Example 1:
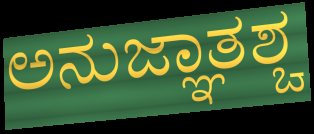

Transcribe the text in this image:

ಅನುಜ್ಞಾತಶ್ಚ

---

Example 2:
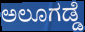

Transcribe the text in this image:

ಅಲೂಗಡ್ಡೆ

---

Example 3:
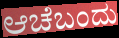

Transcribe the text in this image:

ಆಚೆಬಂದು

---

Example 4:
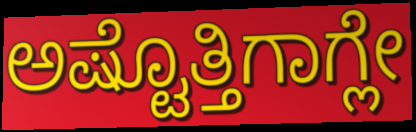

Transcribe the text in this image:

ಅಷ್ಟೊತ್ತಿಗಾಗ್ಲೇ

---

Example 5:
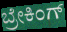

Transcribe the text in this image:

ಬ್ರೇಕಿಂಗ್